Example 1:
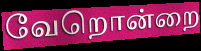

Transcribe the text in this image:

வேறொன்றை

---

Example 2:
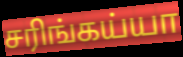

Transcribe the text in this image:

சரிங்கய்யா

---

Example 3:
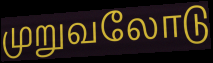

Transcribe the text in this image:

முறுவலோடு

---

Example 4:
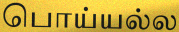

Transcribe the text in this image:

பொய்யல்ல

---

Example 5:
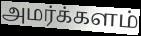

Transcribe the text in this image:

அமர்க்களம்